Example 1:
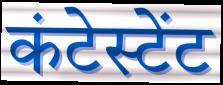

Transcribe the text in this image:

कंटेस्‍टेंट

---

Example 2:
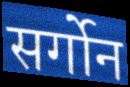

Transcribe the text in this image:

सर्गोन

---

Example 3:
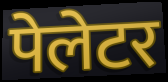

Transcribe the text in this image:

पेलेटर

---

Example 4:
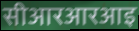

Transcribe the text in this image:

सीआरआरआइ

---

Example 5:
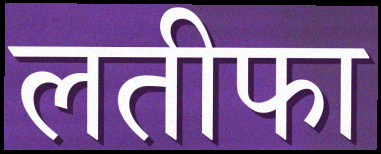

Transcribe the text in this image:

लतीफा